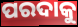
ପରଦାକୁ